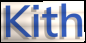
Kith